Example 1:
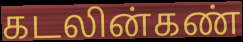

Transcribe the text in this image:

கடலின்கண்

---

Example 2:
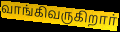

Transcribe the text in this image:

வாங்கிவருகிறார்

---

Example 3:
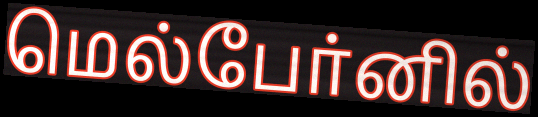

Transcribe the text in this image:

மெல்பேர்னில்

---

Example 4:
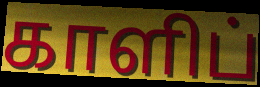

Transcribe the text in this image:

காளிப்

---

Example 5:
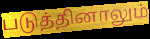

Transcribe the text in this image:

படுத்தினாலும்